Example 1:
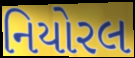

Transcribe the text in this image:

નિયોરલ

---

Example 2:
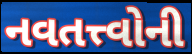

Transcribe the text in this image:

નવતત્ત્વોની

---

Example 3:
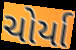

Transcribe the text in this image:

ચોર્યા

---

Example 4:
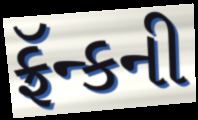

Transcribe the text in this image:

ફ્રૅન્કની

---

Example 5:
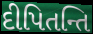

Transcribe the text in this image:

દીપિતન્તિ